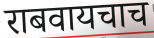
राबवायचाच